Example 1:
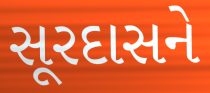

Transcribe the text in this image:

સૂરદાસને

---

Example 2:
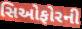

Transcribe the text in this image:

સિઓફોરની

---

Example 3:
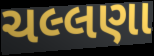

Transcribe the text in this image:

ચલ્લણા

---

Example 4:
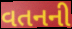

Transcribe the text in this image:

વતનની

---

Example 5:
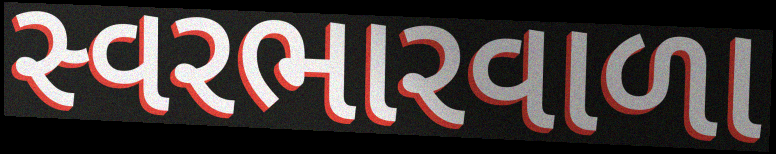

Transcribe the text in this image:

સ્વરભારવાળા